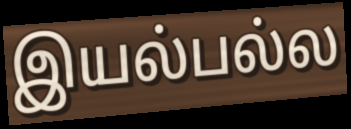
இயல்பல்ல